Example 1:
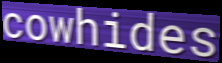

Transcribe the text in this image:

cowhides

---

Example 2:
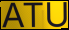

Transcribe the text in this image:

ATU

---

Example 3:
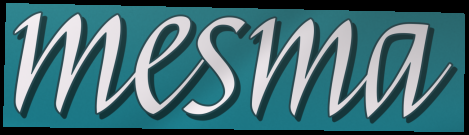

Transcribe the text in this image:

mesma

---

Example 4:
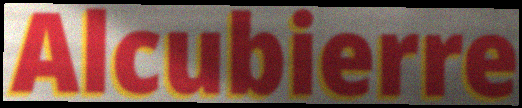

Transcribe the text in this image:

Alcubierre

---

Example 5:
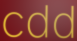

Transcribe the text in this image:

cdd